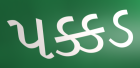
પક્કડ